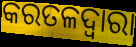
କରତଳଦ୍ୱାରା